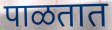
पाळतात